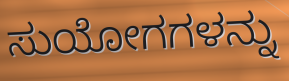
ಸುಯೋಗಗಳನ್ನು